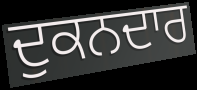
ਦੁਕਨਦਾਰ